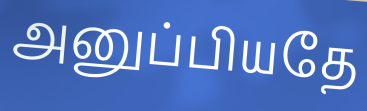
அனுப்பியதே